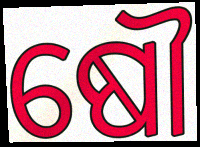
ଷୌ